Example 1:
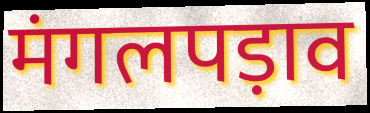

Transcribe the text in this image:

मंगलपड़ाव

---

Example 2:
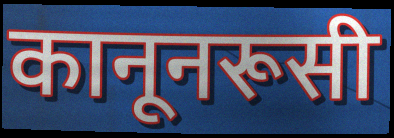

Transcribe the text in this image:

कानूनरूसी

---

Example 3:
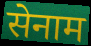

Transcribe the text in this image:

सेनाम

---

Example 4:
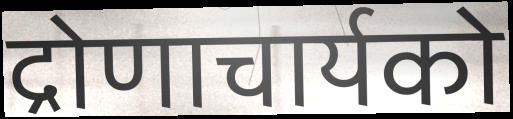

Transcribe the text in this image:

द्रोणाचार्यको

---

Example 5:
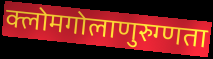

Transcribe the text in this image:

क्लोमगोलाणुरुग्णता